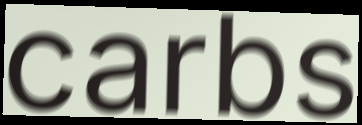
carbs